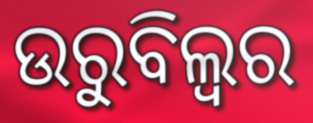
ଉରୁବିଲ୍ଵର